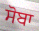
ਸੋਬਾ